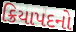
ક્રિયાપદનો